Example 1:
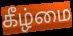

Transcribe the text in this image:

கீழ்மை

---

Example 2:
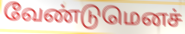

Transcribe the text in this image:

வேண்டுமெனச்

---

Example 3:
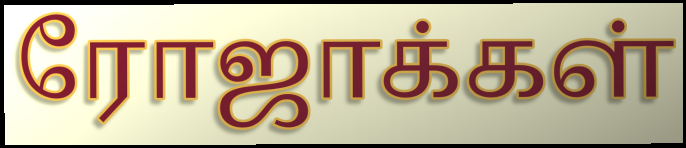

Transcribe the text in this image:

ரோஜாக்கள்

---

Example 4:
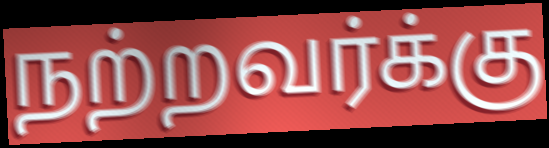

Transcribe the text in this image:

நற்றவர்க்கு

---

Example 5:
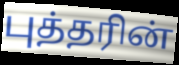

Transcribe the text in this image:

புத்தரின்